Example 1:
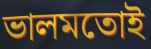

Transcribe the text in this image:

ভালমতোই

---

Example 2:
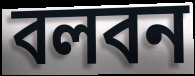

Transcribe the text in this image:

বলবন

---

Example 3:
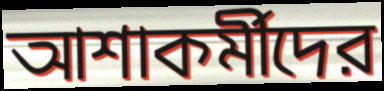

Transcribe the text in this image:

আশাকর্মীদের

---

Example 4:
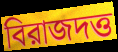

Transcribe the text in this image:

বিরাজদত্ত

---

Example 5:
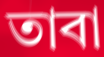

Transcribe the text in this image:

তাবা